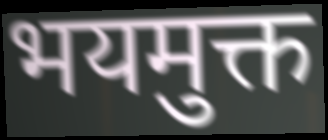
भयमुक्त